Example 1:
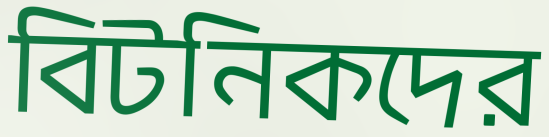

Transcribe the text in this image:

বিটনিকদের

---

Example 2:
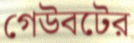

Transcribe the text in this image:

গেউবটের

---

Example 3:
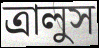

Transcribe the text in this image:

ত্রালুস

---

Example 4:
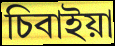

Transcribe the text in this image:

চিবাইয়া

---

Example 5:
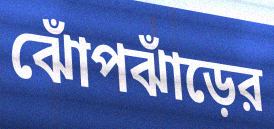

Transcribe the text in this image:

ঝোঁপঝাঁড়ের